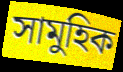
সামুহিক